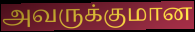
அவருக்குமான